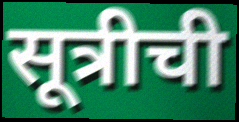
सूत्रीची